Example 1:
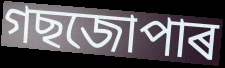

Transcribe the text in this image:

গছজোপাৰ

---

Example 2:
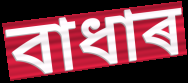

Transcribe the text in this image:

বাধাৰ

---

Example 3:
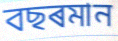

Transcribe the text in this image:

বছৰমান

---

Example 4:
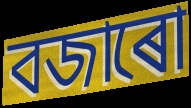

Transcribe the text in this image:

বজাৰো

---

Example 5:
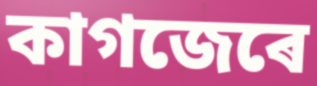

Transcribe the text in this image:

কাগজেৰে